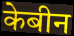
केबीन